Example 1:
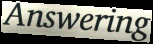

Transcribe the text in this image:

Answering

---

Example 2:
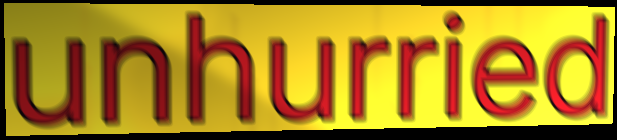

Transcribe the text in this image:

unhurried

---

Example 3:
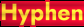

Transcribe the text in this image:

Hyphen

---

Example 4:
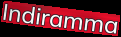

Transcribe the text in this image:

Indiramma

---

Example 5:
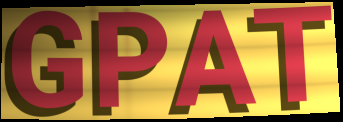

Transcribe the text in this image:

GPAT